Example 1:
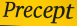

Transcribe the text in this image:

Precept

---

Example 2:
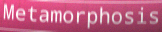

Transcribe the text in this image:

Metamorphosis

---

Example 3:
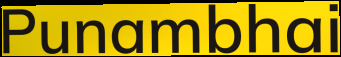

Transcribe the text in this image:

Punambhai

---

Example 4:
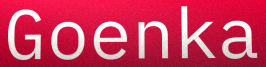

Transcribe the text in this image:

Goenka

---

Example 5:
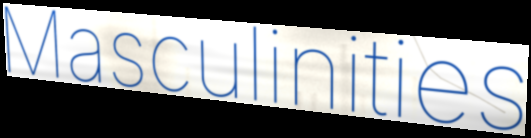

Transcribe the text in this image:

Masculinities